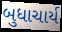
બુધાચાર્ય